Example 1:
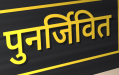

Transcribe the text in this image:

पुनर्जिवित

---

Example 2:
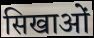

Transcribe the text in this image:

सिखाओं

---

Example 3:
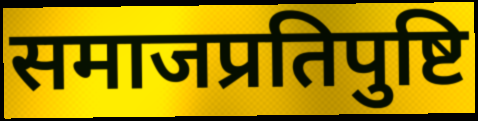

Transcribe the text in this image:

समाजप्रतिपुष्टि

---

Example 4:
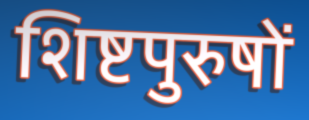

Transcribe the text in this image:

शिष्टपुरुषों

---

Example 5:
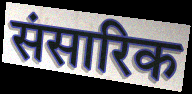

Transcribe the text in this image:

संसारिक